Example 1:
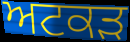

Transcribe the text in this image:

ਅਟਕੜ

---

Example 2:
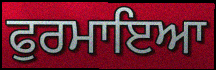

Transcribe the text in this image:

ਫੁਰਮਾਇਆ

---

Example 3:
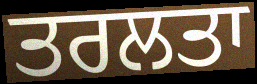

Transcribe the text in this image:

ਤਰਲਤਾ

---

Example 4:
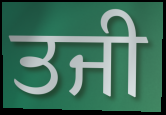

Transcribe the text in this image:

ਤਜੀ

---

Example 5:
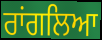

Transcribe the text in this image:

ਰਾਂਗਲਿਆ